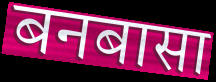
बनबासा